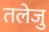
तलेजु